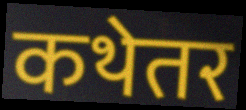
कथेतर